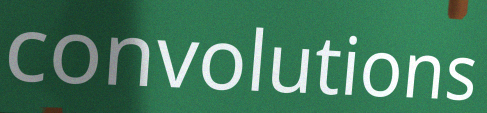
convolutions